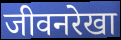
जीवनरेखा